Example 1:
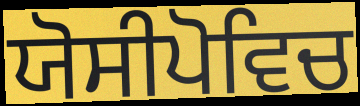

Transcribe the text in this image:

ਯੋਸੀਪੋਵਿਚ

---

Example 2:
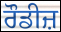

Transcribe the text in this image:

ਰੌਡੀਜ਼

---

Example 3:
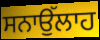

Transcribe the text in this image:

ਸਨਾਉੱਲਾਹ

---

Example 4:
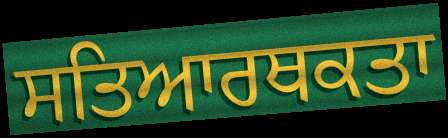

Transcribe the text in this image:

ਸਤਿਆਰਥਕਤਾ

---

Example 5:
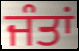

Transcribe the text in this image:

ਜੰਤਾਂ